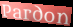
Pardon